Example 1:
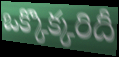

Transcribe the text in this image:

ఒక్కొక్కరిదీ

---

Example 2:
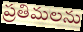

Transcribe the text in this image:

ప్రతిమలను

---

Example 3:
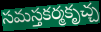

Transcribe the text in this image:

సమస్తకర్మకృచ్చ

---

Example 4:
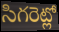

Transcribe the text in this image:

సిగరెట్లో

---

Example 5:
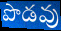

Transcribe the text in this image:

పొడవు